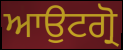
ਆਉਟਗ੍ਰੋ